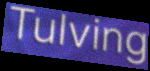
Tulving